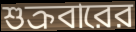
শুক্রবারের